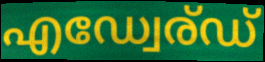
എഡ്വേര്ഡ്